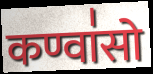
कण्वा॑सो